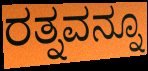
ರತ್ನವನ್ನೂ